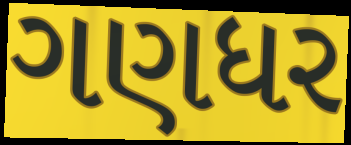
ગણધર